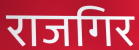
राजगिर